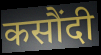
कसौंदी